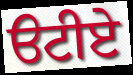
ੳਟੀਏ